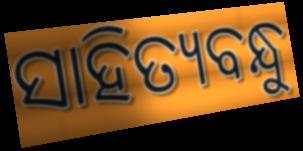
ସାହିତ୍ୟବନ୍ଧୁ